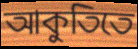
আকুতিতে